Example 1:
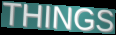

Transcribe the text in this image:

THINGS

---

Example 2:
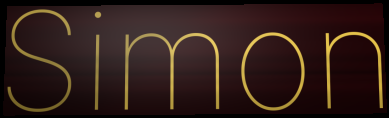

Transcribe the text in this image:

Simon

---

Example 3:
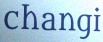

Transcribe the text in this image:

changi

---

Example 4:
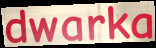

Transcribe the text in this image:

dwarka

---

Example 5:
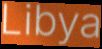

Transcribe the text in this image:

Libya